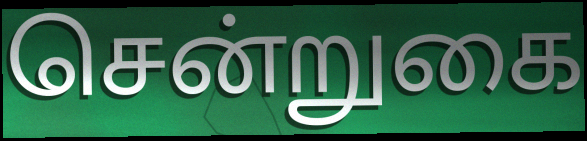
சென்றுகை